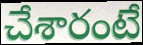
చేశారంటే